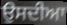
ਉਸਦੀਆ